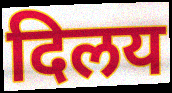
दिलय